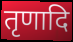
तृणादि